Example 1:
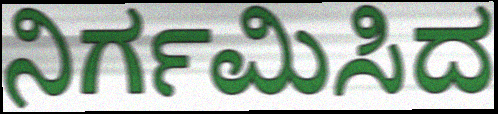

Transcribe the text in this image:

ನಿರ್ಗಮಿಸಿದ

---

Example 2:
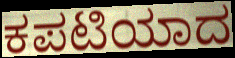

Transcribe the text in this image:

ಕಪಟಿಯಾದ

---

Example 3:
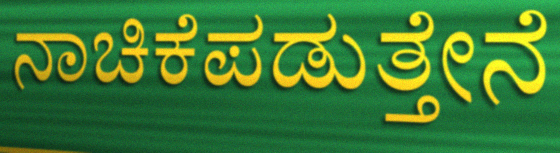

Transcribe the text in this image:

ನಾಚಿಕೆಪಡುತ್ತೇನೆ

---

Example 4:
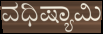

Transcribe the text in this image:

ವಧಿಷ್ಯಾಮಿ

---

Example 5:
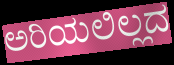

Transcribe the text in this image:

ಅರಿಯಲಿಲ್ಲದ